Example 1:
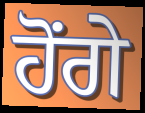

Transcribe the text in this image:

ਹੋਂਗੇ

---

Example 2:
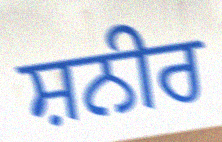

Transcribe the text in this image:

ਸ਼ਨੀਰ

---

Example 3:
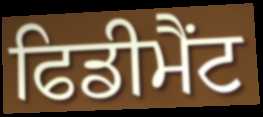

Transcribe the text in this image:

ਫਿਡੀਮੈਂਟ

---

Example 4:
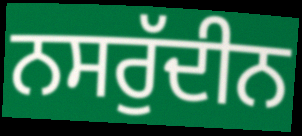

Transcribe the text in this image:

ਨਸਰੁੱਦੀਨ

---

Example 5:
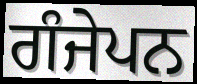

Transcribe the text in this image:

ਗੰਜੇਪਨ